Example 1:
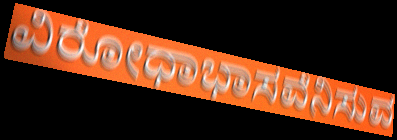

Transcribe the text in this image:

ವಿರೋಧಾಭಾಸವೆನಿಸುವ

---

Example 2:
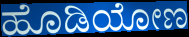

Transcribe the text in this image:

ಹೊಡಿಯೋಣ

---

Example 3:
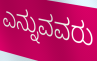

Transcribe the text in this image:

ಎನ್ನುವವರು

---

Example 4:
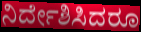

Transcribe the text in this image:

ನಿರ್ದೇಶಿಸಿದರೂ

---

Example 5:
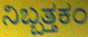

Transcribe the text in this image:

ನಿಬ್ಬತ್ತಕಂ